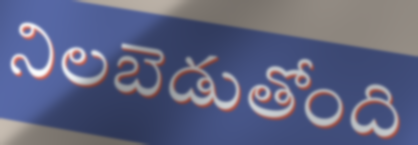
నిలబెడుతోంది